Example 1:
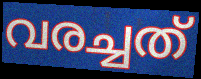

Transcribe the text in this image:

വരച്ചത്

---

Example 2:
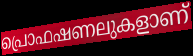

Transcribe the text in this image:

പ്രൊഫഷണലുകളാണ്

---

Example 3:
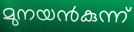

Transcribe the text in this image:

മുനയൻകുന്ന്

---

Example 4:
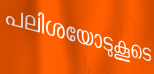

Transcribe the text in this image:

പലിശയോടുകൂടെ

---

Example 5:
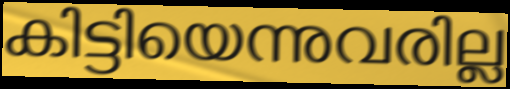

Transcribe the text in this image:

കിട്ടിയെന്നുവരില്ല